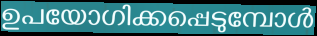
ഉപയോഗിക്കപ്പെടുമ്പോൾ